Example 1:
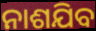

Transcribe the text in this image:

ନାଶଯିବ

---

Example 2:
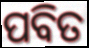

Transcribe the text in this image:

ପବିତ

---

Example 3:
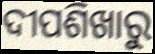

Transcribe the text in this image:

ଦୀପଶିଖାରୁ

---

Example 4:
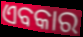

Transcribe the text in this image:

ଏବକାର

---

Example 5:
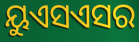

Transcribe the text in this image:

ୟୁଏସଏସର